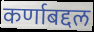
कर्णाबद्दल